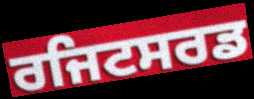
ਰਜਿਟਸਰਡ